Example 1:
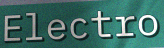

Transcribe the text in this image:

Electro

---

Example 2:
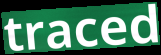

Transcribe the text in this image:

traced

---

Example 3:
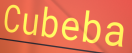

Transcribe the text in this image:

Cubeba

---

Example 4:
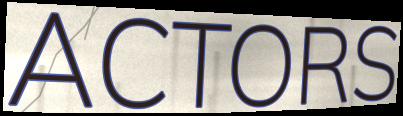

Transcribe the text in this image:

ACTORS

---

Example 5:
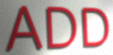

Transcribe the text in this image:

ADD